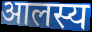
आलस्‍य